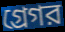
গ্রেগর